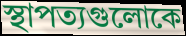
স্থাপত্যগুলোকে